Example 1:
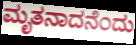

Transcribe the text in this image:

ಮೃತನಾದನೆಂದು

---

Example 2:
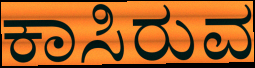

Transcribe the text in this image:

ಕಾಸಿರುವ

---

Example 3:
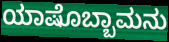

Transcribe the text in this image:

ಯಾಷೊಬ್ಬಾಮನು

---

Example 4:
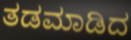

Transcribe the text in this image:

ತಡಮಾಡಿದ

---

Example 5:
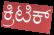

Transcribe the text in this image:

ಕ್ರಿಟಿಕ್